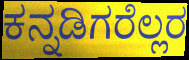
ಕನ್ನಡಿಗರೆಲ್ಲರ